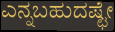
ಎನ್ನಬಹುದಷ್ಟೇ